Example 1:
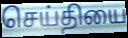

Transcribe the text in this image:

செய்தியை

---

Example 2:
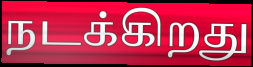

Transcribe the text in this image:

நடக்கிறது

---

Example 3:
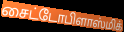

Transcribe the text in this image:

சைட்டோபிளாஸ்மிக்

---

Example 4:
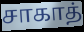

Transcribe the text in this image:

சாகாத்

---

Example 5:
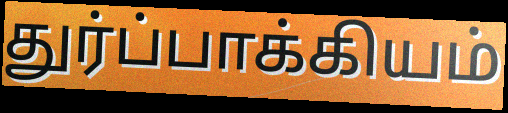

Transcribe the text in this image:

துர்ப்பாக்கியம்